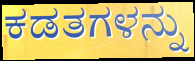
ಕಡತಗಳನ್ನು